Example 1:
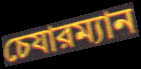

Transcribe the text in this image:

চেযারম্যান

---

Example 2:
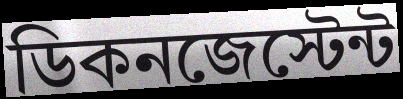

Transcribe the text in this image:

ডিকনজেস্টেন্ট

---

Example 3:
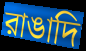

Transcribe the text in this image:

রাঙাদি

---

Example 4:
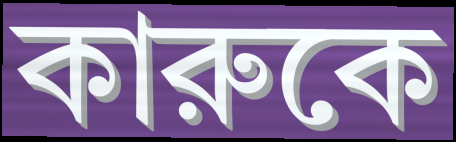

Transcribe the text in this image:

কারুকে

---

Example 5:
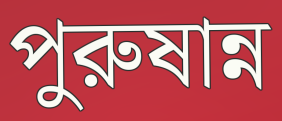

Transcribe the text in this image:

পুরুষান্ন